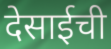
देसाईची